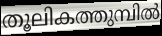
തൂലികത്തുമ്പിൽ